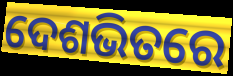
ଦେଶଭିତରେ